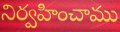
నిర్వహించాము